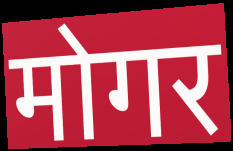
मोगर